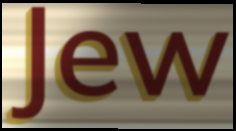
Jew